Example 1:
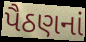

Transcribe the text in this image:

પૈઠણનાં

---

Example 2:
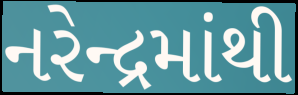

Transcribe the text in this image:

નરેન્દ્રમાંથી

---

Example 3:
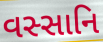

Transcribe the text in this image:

વસ્સાનિ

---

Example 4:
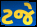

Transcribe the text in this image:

ટજે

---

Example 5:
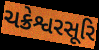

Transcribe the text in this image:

ચક્રેશ્વરસૂરિ